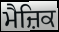
ਮੈਜ਼ਿਕ